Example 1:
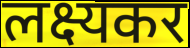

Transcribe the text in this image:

लक्ष्यकर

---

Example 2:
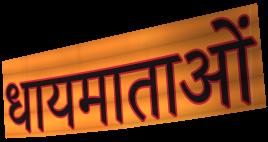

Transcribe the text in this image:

धायमाताओं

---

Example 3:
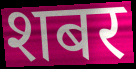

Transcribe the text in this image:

शबर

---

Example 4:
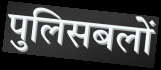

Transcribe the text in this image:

पुलिसबलों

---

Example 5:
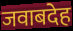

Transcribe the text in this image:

जवाबदेह